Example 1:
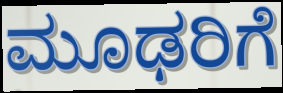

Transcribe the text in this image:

ಮೂಢರಿಗೆ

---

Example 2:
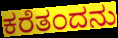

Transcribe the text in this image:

ಕರೆತಂದನು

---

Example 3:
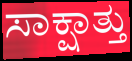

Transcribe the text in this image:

ಸಾಕ್ಷಾತ್ತು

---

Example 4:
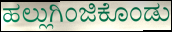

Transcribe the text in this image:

ಹಲ್ಲುಗಿಂಜಿಕೊಂಡು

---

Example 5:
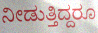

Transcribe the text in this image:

ನೀಡುತ್ತಿದ್ದರೂ